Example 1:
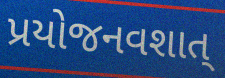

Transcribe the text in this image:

પ્રયોજનવશાત્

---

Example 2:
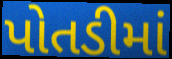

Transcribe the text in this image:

પોતડીમાં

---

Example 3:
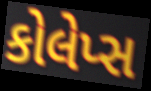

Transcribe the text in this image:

કોલેપ્સ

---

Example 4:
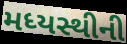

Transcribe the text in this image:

મધ્યસ્થીની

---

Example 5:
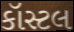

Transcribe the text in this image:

કૉસ્ટલ